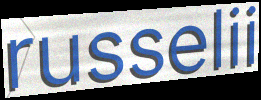
russelii